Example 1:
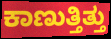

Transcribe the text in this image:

ಕಾಣುತ್ತಿತ್ತು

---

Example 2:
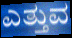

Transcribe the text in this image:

ಎತ್ತುವ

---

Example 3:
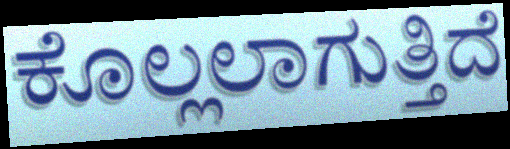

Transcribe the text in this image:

ಕೊಲ್ಲಲಾಗುತ್ತಿದೆ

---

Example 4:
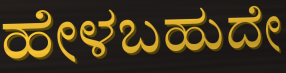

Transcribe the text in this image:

ಹೇಳಬಹುದೇ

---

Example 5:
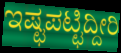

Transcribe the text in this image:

ಇಷ್ಟಪಟ್ಟಿದ್ದೀರಿ